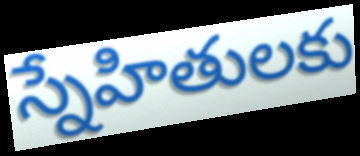
స్నేహితులకు